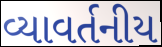
વ્યાવર્તનીય